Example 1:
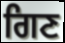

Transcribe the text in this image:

ਗਿਣ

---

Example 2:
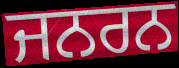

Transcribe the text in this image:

ਜਨਰਨ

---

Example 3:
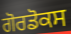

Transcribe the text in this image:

ਗੋਰਡੋਕਸ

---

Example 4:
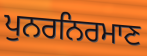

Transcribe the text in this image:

ਪੁਨਰਨਿਰਮਾਣ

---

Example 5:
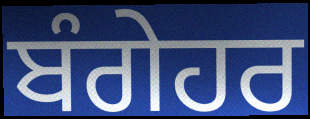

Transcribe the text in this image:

ਬੰਗੇਹਰ